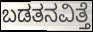
ಬಡತನವಿತ್ತೆ